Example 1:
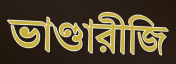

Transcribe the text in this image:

ভাণ্ডারীজি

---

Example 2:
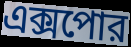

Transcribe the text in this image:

এক্সপোর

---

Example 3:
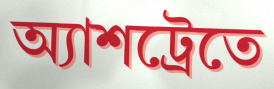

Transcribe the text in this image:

অ্যাশট্রেতে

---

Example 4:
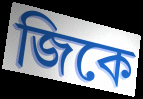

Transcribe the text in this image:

জিকে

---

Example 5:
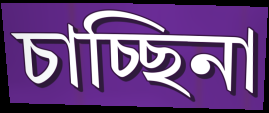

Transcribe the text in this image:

চাচ্ছিনা